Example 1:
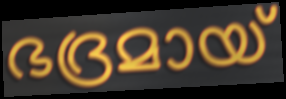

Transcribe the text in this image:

ഭദ്രമായ്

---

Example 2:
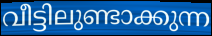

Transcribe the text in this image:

വീട്ടിലുണ്ടാക്കുന്ന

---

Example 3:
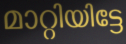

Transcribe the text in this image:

മാറ്റിയിട്ടേ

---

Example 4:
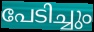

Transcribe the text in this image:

പേടിച്ചും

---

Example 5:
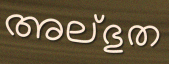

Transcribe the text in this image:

അല്ഭുത